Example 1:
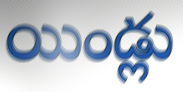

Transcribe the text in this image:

యిండ్లు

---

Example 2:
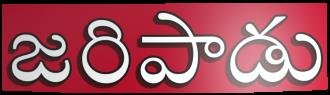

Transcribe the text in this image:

జరిపాడు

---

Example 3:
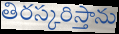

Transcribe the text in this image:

తిరస్కరిస్తాను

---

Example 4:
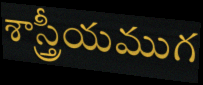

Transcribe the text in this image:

శాస్త్రీయముగ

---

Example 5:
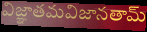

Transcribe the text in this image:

విజ్ఞాతమవిజానతామ్